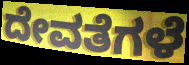
ದೇವತೆಗಳೆ